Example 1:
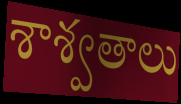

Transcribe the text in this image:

శాశ్వతాలు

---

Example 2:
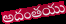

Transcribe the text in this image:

అదంతయు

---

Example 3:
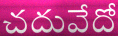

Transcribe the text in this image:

చదువేదో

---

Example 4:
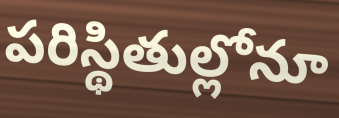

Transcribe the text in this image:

పరిస్థితుల్లోనూ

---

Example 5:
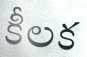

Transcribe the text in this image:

కీలక